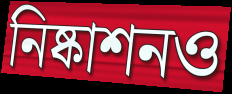
নিষ্কাশনও